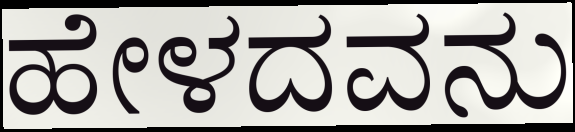
ಹೇಳದವನು